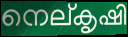
നെല്കൃഷി